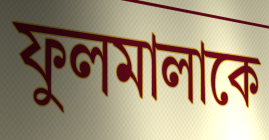
ফুলমালাকে